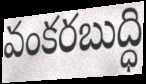
వంకరబుద్ధి